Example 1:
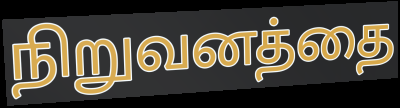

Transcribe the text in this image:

நிறுவனத்தை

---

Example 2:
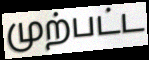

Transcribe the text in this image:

முற்பட்ட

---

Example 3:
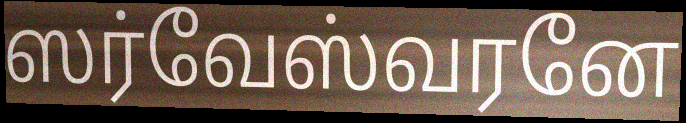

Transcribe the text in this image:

ஸர்வேஸ்வரனே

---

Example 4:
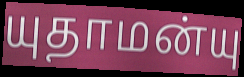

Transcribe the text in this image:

யுதாமன்யு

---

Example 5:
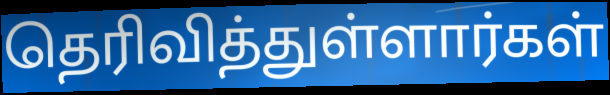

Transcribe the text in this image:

தெரிவித்துள்ளார்கள்